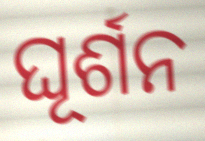
ଘୂର୍ଶନ